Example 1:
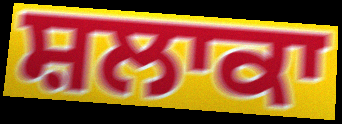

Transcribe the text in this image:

ਸ਼ਲਾਕਾ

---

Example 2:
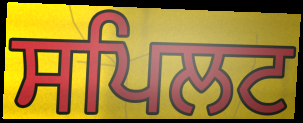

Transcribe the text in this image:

ਸਪਿਲਟ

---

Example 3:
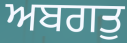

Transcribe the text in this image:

ਅਬਗਤੁ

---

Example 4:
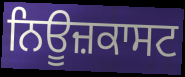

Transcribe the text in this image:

ਨਿਊਜ਼ਕਾਸਟ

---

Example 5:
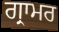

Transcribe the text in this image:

ਗ੍ਰਾਮਰ